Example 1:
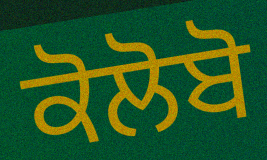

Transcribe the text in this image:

ਕੋਲੋਬੋ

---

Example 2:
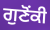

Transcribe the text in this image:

ਗੁਣੋਂਕੀ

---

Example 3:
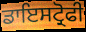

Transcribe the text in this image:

ਡਾਇਸਟ੍ਰੋਫੀ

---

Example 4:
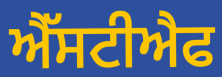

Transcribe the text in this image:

ਐੱਸਟੀਐਫ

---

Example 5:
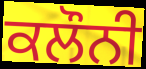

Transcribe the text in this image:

ਕਲੌਨੀ